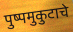
पुष्पमुकुटाचे